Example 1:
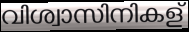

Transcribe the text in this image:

വിശ്വാസിനികള്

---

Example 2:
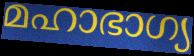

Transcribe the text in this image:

മഹാഭാഗ്യ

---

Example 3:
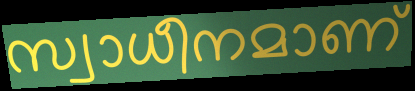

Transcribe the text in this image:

സ്വാധീനമാണ്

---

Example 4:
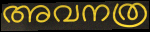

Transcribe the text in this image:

അവനത്ര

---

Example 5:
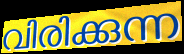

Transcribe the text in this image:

വിരിക്കുന്ന